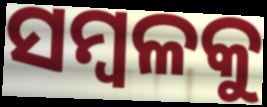
ସମ୍ବଳକୁ